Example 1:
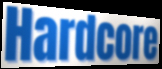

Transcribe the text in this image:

Hardcore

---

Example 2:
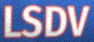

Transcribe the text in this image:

LSDV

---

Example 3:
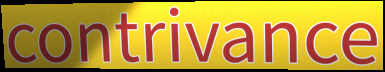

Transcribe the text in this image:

contrivance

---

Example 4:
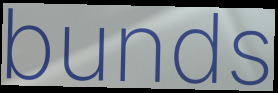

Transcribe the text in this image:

bunds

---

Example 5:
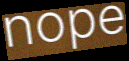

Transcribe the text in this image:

nope